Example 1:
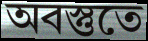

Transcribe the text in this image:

অবস্তুতে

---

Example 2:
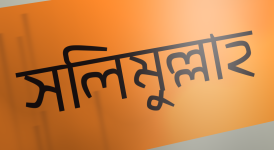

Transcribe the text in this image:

সলিমুল্লাহ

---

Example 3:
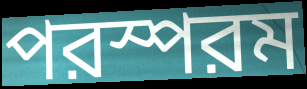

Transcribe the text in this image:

পরস্পরম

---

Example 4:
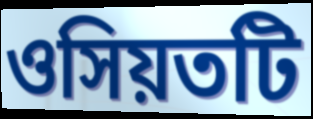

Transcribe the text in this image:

ওসিয়তটি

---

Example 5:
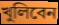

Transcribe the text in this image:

খুলিবেন